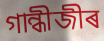
গান্ধীজীৰ